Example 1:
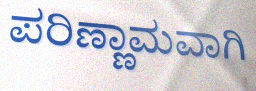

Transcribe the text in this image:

ಪರಿಣ್ಣಾಮವಾಗಿ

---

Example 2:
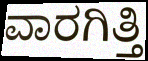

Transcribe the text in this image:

ವಾರಗಿತ್ತಿ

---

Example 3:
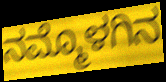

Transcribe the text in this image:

ನಮ್ಮೊಳಗಿನ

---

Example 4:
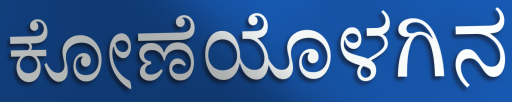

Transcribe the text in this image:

ಕೋಣೆಯೊಳಗಿನ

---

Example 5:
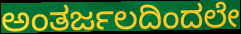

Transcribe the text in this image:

ಅಂತರ್ಜಲದಿಂದಲೇ